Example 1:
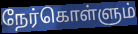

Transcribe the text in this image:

நேர்கொள்ளும்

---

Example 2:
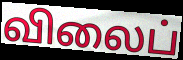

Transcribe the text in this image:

விலைப்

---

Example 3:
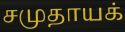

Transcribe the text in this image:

சமுதாயக்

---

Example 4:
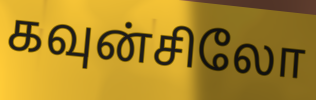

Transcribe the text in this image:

கவுன்சிலோ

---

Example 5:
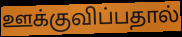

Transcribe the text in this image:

ஊக்குவிப்பதால்